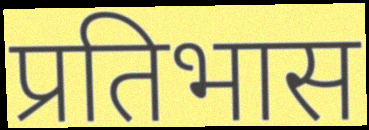
प्रतिभास